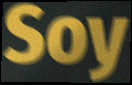
Soy